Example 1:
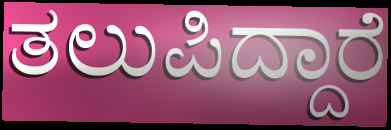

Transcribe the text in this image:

ತಲುಪಿದ್ದಾರೆ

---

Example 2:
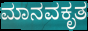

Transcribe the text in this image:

ಮಾನವಕೃತ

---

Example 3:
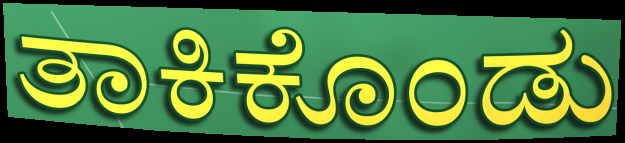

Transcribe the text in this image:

ತಾಕಿಕೊಂಡು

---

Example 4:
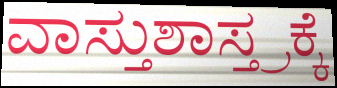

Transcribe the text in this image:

ವಾಸ್ತುಶಾಸ್ತ್ರಕ್ಕೆ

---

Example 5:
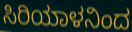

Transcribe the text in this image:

ಸಿರಿಯಾಳನಿಂದ